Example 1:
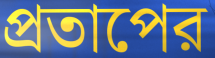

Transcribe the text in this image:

প্রতাপের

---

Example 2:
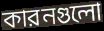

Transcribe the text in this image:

কারনগুলো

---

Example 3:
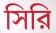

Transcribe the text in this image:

সিরি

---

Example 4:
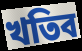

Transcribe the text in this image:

খতিব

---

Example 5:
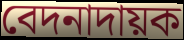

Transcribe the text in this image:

বেদনাদায়ক